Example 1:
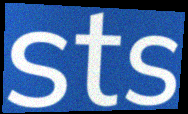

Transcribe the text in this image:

sts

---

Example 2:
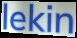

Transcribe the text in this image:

lekin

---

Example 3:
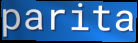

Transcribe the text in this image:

parita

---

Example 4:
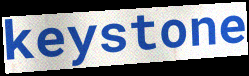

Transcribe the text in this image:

keystone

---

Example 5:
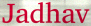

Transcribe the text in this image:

Jadhav